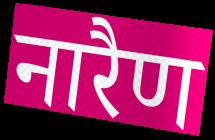
नारैण